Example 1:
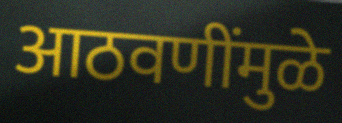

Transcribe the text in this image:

आठवणींमुळे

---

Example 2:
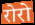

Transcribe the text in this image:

रोरो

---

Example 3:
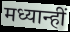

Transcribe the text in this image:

मध्यान्हीं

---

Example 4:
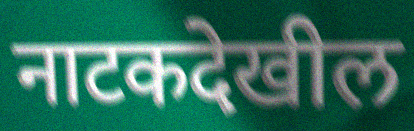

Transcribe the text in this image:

नाटकदेखील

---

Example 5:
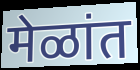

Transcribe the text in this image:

मेळांत